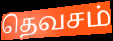
தெவசம்